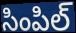
సింపిల్